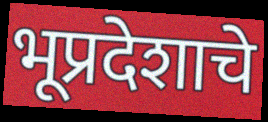
भूप्रदेशाचे